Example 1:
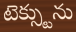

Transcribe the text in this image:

టెక్స్టును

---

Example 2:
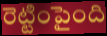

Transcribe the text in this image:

రెట్టింపైంది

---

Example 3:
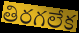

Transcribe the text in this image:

తిరగలేక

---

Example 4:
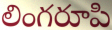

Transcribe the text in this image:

లింగరూపి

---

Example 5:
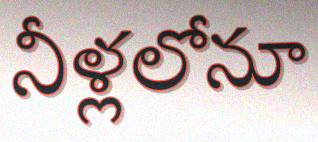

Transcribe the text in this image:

నీళ్లలోనూ